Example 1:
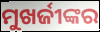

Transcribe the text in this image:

ମୁଖର୍ଜୀଙ୍କର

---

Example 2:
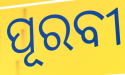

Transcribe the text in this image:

ପୂରବୀ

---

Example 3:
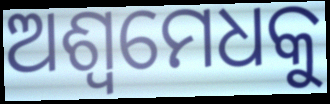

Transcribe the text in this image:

ଅଶ୍ୱମେଧକୁ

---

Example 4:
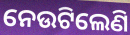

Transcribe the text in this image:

ନେଉଟିଲେଣି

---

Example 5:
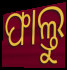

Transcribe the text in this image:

ଫାଲ୍ତୁ